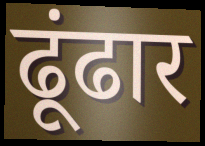
ढूंढार